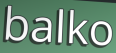
balko